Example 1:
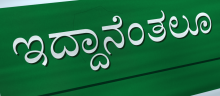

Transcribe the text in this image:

ಇದ್ದಾನೆಂತಲೂ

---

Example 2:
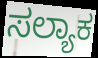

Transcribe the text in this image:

ಸಲ್ಯಾಕ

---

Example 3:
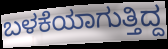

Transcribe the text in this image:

ಬಳಕೆಯಾಗುತ್ತಿದ್ದ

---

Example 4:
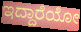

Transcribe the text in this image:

ಇದ್ದಾರೆಯೋ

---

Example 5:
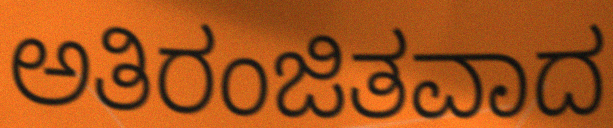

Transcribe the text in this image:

ಅತಿರಂಜಿತವಾದ